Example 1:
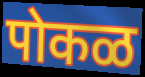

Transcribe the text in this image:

पोकळ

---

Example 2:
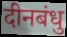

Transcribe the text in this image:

दीनबंधु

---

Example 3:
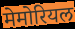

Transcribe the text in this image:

मेमोरियल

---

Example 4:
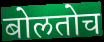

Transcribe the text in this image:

बोलतोच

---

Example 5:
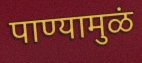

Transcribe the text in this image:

पाण्यामुळं